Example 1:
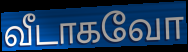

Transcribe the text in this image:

வீடாகவோ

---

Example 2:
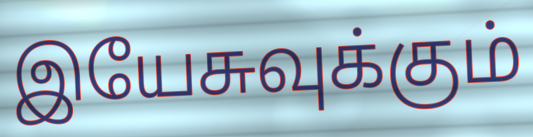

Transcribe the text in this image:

இயேசுவுக்கும்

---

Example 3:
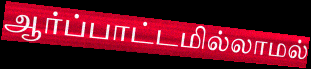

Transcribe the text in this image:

ஆர்ப்பாட்டமில்லாமல்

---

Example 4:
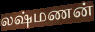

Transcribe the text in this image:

லஷ்மணன்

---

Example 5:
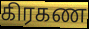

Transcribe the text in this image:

கிரகண